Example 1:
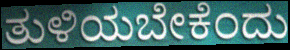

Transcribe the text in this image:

ತುಳಿಯಬೇಕೆಂದು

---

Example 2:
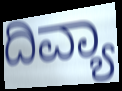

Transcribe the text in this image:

ದಿವ್ಯಾ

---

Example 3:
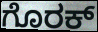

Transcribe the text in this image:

ಗೊರಕ್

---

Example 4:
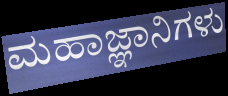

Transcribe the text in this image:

ಮಹಾಜ್ಞಾನಿಗಳು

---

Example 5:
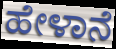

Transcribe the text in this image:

ಹೇಳಾನೆ